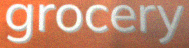
grocery